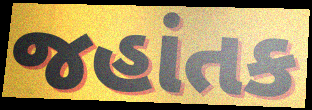
જહાંતક